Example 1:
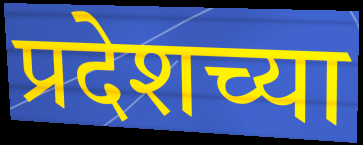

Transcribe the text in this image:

प्रदेशच्या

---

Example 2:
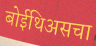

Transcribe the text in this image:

बोईथिअसचा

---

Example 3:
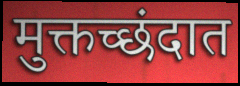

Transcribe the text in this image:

मुक्तच्छंदात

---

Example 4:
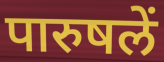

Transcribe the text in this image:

पारुषलें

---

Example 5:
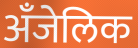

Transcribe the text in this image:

अँजेलिक